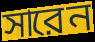
সারেন